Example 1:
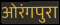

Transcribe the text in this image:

ओरंगपुरा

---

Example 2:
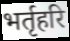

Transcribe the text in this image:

भर्तृहरि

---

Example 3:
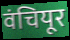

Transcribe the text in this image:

वंचियूर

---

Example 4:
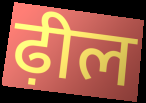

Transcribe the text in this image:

ढ़ील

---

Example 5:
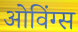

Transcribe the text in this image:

ओविंग्स